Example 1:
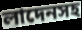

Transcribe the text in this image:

লাদেনসহ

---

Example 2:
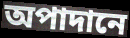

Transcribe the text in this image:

অপাদানে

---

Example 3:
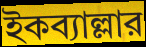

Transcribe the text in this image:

ইকব্যাল্লার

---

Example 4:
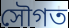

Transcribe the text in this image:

সৌগত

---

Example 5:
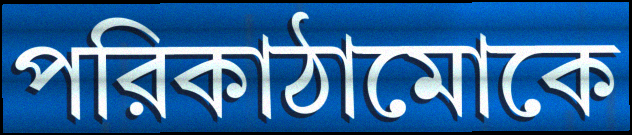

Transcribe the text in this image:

পরিকাঠামোকে